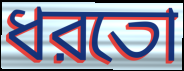
ধরতো